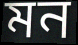
মন